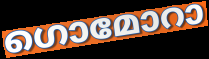
ഗൊമോറാ